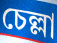
চেল্লা